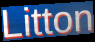
Litton